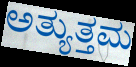
ಅತ್ಯುತ್ತಮ